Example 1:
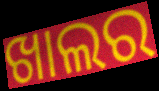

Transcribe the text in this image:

ଖାଲର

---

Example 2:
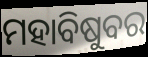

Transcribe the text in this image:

ମହାବିଷୁବର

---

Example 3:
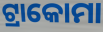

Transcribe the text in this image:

ଟ୍ରାକୋମା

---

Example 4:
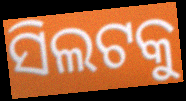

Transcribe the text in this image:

ସିଲଟକୁ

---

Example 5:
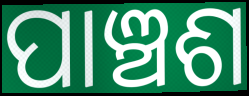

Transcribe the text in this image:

ପାଞ୍ଚଶ